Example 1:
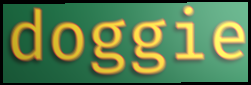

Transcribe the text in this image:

doggie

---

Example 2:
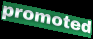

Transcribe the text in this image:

promoted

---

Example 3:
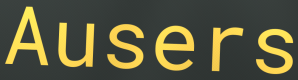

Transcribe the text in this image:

Ausers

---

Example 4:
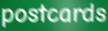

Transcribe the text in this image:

postcards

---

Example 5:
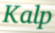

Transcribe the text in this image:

Kalp